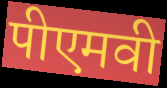
पीएमवी